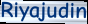
Riyajudin